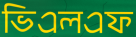
ভিএলএফ